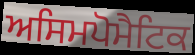
ਅਸਿਮਪੋਮੈਟਿਕ